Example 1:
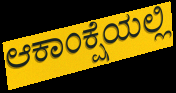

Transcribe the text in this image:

ಆಕಾಂಕ್ಷೆಯಲ್ಲಿ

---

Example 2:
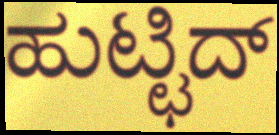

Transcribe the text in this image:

ಹುಟ್ಟಿದ್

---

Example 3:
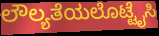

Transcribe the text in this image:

ಲೌಲ್ಯತೆಯಲೊಟ್ಟೈಸಿ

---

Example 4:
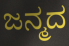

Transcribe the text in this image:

ಜನ್ಮದ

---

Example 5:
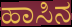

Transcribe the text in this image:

ಹಾಸಿನ